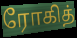
ரோகித்